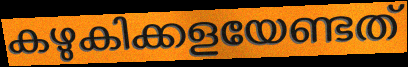
കഴുകിക്കളയേണ്ടത്